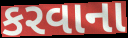
કરવાના